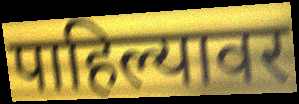
पाहिल्यावर